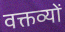
वक्तव्यों